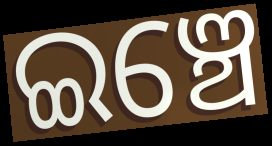
ଇଞ୍ଚେ